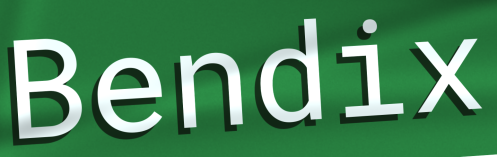
Bendix